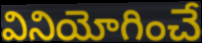
వినియోగించే